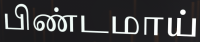
பிண்டமாய்